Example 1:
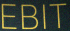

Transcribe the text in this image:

EBIT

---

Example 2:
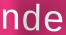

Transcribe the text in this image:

nde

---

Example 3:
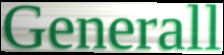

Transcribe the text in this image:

Generall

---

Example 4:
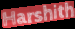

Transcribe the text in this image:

Harshith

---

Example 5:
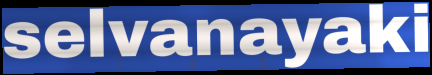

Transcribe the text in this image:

selvanayaki